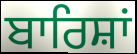
ਬਾਰਿਸ਼ਾਂ